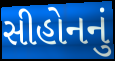
સીહોનનું